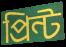
প্রিন্ট